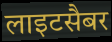
लाइटसैबर